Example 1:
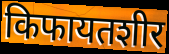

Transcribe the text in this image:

किफायतशीर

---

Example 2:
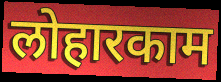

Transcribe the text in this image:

लोहारकाम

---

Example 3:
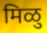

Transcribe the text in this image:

मिळु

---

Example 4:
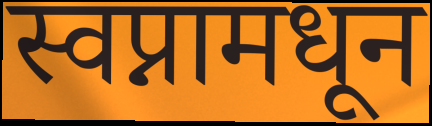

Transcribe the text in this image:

स्वप्नामधून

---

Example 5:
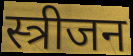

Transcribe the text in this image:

स्त्रीजन